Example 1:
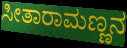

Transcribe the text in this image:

ಸೀತಾರಾಮಣ್ಣನ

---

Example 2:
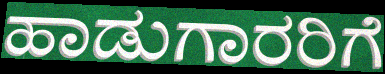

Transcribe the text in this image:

ಹಾಡುಗಾರರಿಗೆ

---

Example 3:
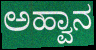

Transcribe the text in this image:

ಅಹ್ವಾನ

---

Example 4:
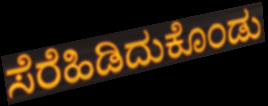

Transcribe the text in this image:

ಸೆರೆಹಿಡಿದುಕೊಂಡು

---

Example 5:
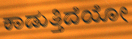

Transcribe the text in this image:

ಕಾಡುತ್ತಿದೆಯೋ